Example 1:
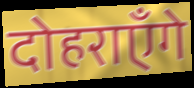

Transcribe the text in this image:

दोहराएँगे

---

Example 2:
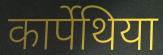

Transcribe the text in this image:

कार्पेथिया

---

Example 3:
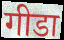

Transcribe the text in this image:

गीडा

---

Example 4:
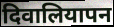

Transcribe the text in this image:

दिवालियापन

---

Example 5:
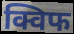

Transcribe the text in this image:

क्विफ